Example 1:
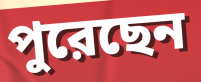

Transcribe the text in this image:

পুরেছেন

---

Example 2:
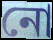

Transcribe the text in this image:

নো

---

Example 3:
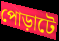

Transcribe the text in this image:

পোড়াটে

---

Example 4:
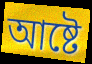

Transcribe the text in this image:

আষ্টে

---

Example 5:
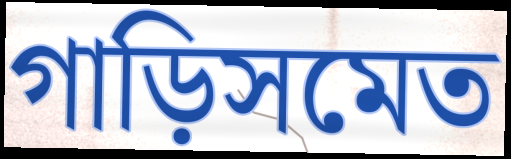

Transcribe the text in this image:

গাড়িসমেত